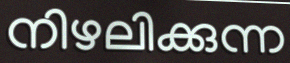
നിഴലിക്കുന്ന